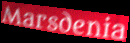
Marsdenia